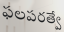
ఫలపరత్వే